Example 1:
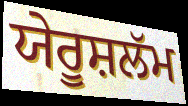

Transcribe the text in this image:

ਯੇਰੂਸ਼ਲੱਮ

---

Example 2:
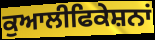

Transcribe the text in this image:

ਕੁਆਲੀਫਿਕੇਸ਼ਨਾਂ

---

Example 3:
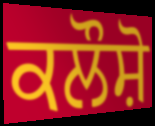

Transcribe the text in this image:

ਕਲੌਸ਼ੋ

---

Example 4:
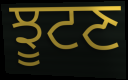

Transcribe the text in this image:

ਝੂਟਣ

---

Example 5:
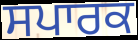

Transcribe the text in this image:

ਸਪਾਰਕ